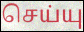
செய்யு